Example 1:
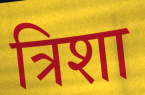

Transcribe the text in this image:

त्रिशा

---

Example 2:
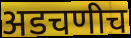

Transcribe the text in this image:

अडचणीच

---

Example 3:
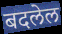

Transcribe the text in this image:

बदलेल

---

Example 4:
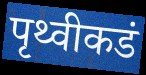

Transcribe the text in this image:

पृथ्वीकडं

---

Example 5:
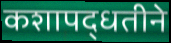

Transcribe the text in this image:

कशापद्धतीने